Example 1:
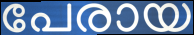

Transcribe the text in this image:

പേരായ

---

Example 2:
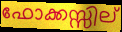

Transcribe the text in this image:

ഫോക്കസ്സില്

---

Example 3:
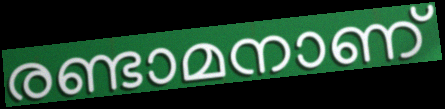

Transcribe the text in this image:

രണ്ടാമനാണ്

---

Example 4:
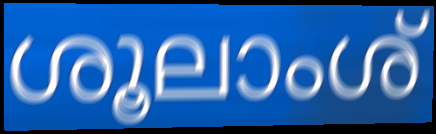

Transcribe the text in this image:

ശൂലാംശ്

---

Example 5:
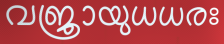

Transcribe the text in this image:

വജ്രായുധധരഃ